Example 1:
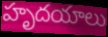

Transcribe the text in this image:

హృదయాలు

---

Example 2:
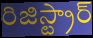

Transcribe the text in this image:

రిజిస్ట్రార్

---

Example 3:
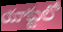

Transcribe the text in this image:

యాక్టులో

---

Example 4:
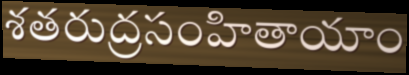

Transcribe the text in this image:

శతరుద్రసంహితాయాం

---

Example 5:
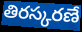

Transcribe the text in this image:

తిరస్కరణే